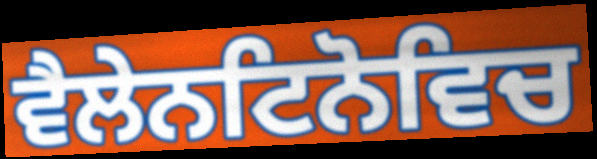
ਵੈਲੇਨਟਿਨੋਵਿਚ